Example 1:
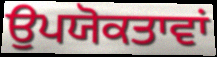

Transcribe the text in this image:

ਉਪਯੋਕਤਾਵਾਂ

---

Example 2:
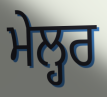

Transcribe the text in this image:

ਮੇਲ੍ਹਰ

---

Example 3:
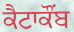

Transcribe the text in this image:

ਕੈਟਾਕੌਂਬ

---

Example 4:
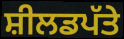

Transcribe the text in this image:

ਸ਼ੀਲਡਪੱਤੇ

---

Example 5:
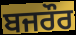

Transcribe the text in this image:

ਬਜਰੌਰ